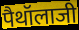
पैथॉलाजी